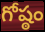
గోష్ఠం